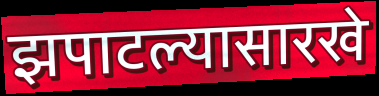
झपाटल्यासारखे